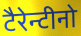
टैरेन्टीनो